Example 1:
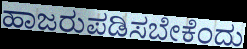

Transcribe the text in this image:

ಹಾಜರುಪಡಿಸಬೇಕೆಂದು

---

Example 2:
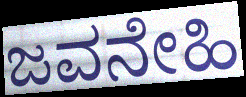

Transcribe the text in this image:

ಜವನೇಹಿ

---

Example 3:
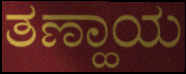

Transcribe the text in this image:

ತಣ್ಹಾಯ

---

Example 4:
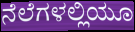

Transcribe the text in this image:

ನೆಲೆಗಳಲ್ಲಿಯೂ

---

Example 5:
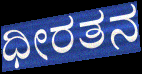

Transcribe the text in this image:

ಧೀರತನ